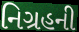
નિગ્રહની